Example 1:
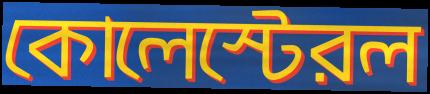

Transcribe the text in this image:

কোলেস্টেরল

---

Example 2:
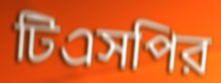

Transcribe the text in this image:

টিএসপির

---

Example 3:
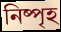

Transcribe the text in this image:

নিষ্পৃহ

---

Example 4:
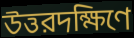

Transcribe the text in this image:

উত্তরদক্ষিণে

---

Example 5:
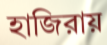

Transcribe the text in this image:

হাজিরায়